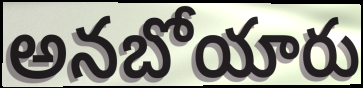
అనబోయారు